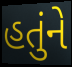
હતુંને